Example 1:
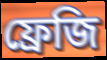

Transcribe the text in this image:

ফ্রেজি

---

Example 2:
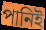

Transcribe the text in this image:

পানিই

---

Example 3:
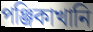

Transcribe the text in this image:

পঞ্জিকাখানি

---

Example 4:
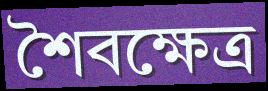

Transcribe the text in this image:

শৈবক্ষেত্র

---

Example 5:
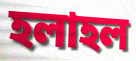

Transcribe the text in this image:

হলাহল